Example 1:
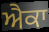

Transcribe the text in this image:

ਐਕਾ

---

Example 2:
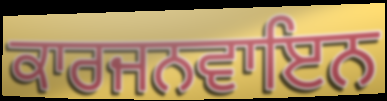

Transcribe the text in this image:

ਕਾਰਜਨਵਾਇਨ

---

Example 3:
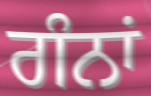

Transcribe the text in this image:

ਗੰਨਾਂ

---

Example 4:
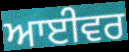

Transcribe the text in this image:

ਆਈਵਰ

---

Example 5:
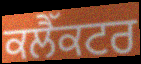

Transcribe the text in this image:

ਕਲੈੱਕਟਰ